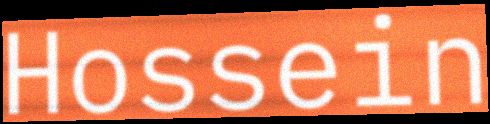
Hossein